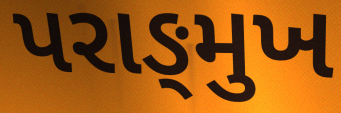
પરાઙ્મુખ